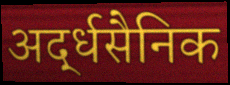
अर्द्धसैनिक